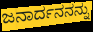
ಜನಾರ್ದನನನ್ನು